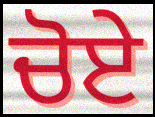
ਚੋਏ